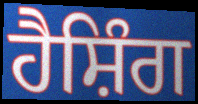
ਹੈਸ਼ਿੰਗ